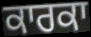
ਕਾਰਕਾ